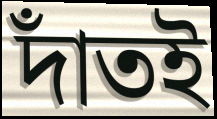
দাঁতই